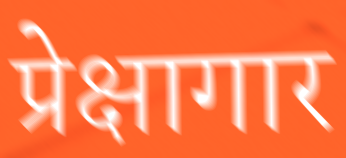
प्रेक्षागार